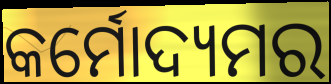
କର୍ମୋଦ୍ୟମର